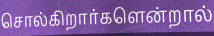
சொல்கிறார்களென்றால்